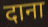
दाना